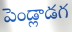
పెండ్లాడగ